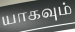
யாகவும்